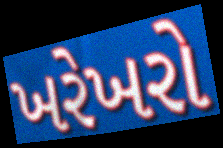
ખરેખરો